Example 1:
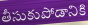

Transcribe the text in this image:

తీసుకుపోడానికి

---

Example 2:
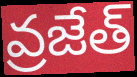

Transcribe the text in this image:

వ్రజేత్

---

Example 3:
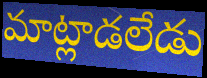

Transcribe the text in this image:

మాట్లాడలేడు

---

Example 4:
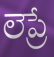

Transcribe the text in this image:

లెప్రే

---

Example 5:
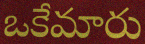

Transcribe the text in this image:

ఒకేమారు